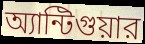
অ্যান্টিগুয়ার